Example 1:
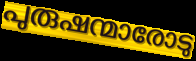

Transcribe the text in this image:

പുരുഷന്മാരോടു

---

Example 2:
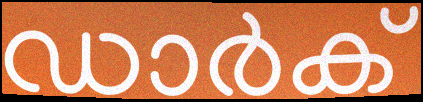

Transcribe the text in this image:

ഡാർക്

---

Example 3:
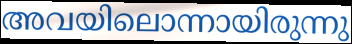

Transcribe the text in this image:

അവയിലൊന്നായിരുന്നു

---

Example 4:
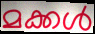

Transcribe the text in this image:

മക്കൾ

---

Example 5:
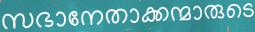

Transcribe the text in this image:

സഭാനേതാക്കന്മാരുടെ